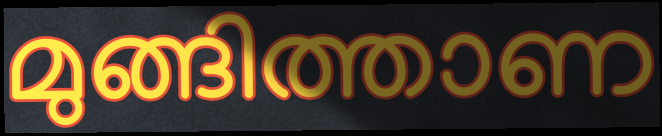
മുങ്ങിത്താണ